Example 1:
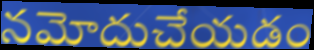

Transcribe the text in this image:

నమోదుచేయడం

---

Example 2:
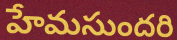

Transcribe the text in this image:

హేమసుందరి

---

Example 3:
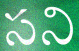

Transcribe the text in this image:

సని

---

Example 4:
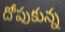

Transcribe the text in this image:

దోపుకున్న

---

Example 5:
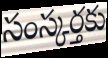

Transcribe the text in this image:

సంస్కర్తకు